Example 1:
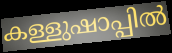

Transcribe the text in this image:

കള്ളുഷാപ്പിൽ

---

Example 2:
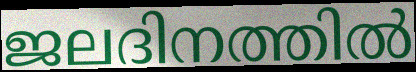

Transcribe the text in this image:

ജലദിനത്തിൽ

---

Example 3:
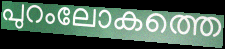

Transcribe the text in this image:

പുറംലോകത്തെ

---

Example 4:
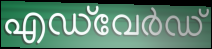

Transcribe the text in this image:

എഡ്‌വേർഡ്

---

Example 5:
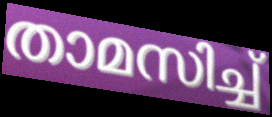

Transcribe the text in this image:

താമസിച്ച്